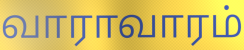
வாராவாரம்